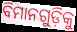
ବିମାନଗୁଡ଼ିକୁ